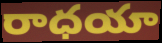
రాధయా